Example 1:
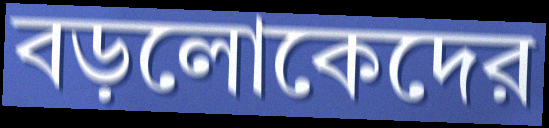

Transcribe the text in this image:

বড়লোকেদের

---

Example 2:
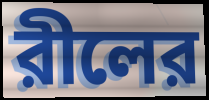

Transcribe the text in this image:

রীলের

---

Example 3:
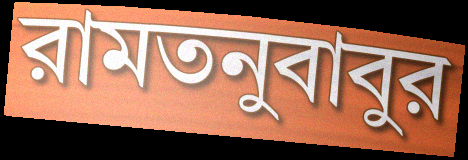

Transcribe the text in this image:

রামতনুবাবুর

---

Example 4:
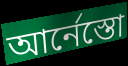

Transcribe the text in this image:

আর্নেস্তো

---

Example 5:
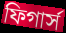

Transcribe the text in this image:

ফিগার্স